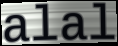
alal